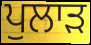
ਪੁਲਾੜ